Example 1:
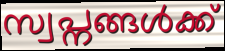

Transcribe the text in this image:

സ്വപ്നങ്ങൾക്ക്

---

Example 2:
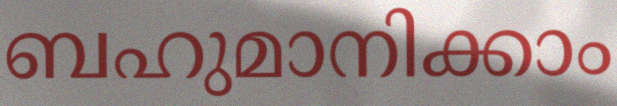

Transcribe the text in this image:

ബഹുമാനിക്കാം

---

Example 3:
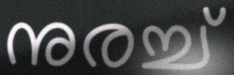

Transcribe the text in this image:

നുരച്ച്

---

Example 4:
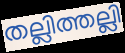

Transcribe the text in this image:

തല്ലിത്തല്ലി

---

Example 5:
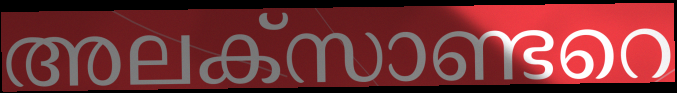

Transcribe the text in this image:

അലക്സാണ്ടറെ